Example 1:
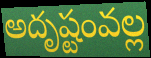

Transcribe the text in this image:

అదృష్టంవల్ల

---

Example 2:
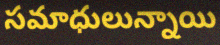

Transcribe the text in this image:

సమాధులున్నాయి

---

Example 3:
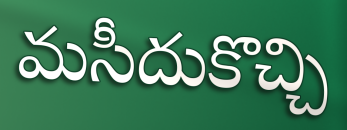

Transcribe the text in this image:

మసీదుకొచ్చి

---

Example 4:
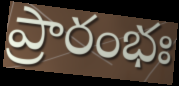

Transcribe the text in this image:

ప్రారంభః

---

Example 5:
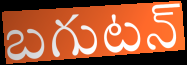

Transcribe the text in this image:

బగుటన్